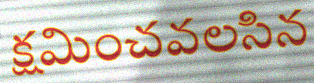
క్షమించవలసిన